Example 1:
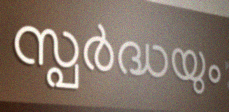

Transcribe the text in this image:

സ്പർദ്ധയും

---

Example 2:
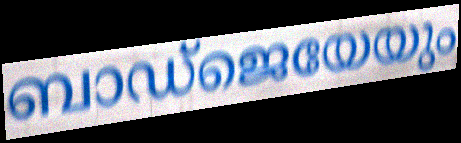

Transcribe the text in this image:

ബാഡ്ജെയേയും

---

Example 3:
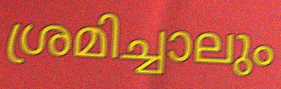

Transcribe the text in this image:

ശ്രമിച്ചാലും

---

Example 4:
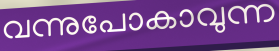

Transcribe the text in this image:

വന്നുപോകാവുന്ന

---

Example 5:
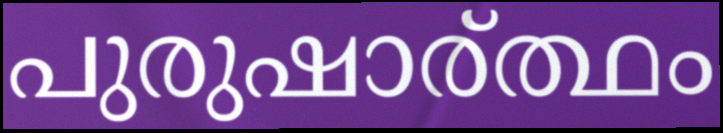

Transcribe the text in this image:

പുരുഷാര്ത്ഥം